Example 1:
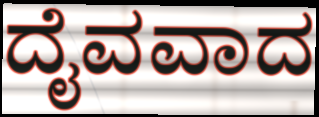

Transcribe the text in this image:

ದೈವವಾದ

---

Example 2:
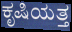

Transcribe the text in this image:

ಕೃಷಿಯತ್ತ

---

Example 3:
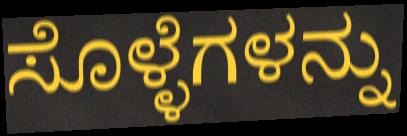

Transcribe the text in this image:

ಸೊಳ್ಳೆಗಳನ್ನು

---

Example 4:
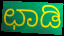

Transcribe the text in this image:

ಛಾಡಿ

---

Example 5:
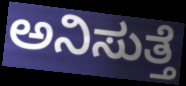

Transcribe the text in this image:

ಅನಿಸುತ್ತೆ